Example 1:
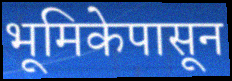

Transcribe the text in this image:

भूमिकेपासून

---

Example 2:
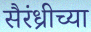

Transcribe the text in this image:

सैरंध्रीच्या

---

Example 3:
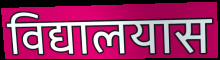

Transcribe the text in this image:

विद्यालयास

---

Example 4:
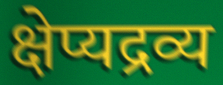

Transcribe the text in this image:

क्षेप्यद्रव्य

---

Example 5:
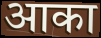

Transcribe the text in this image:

आका